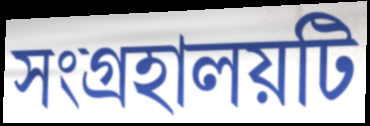
সংগ্রহালয়টি